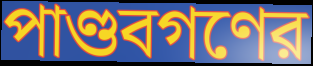
পাণ্ডবগণের